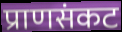
प्राणसंकट